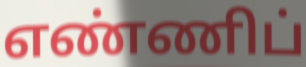
எண்ணிப்